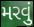
મરવું